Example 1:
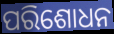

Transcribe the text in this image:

ପରିଶୋଧନ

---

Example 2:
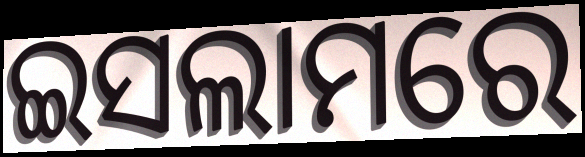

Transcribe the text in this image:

ଇସଲାମରେ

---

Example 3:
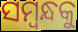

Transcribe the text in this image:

ସମ୍ବନ୍ଧକୁ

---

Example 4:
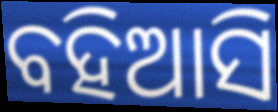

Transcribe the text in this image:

ବହିଆସି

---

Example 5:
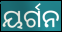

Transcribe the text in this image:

ୟର୍ଗନ